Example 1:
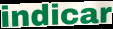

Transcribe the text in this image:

indicar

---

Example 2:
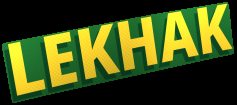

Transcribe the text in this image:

LEKHAK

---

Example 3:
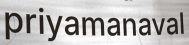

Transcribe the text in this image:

priyamanaval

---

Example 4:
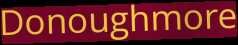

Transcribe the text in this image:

Donoughmore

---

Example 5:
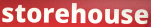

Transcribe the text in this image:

storehouse